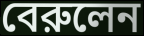
বেরুলেন